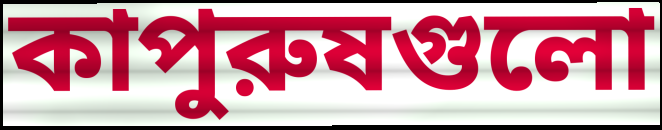
কাপুরুষগুলো